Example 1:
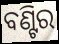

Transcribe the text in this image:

ବଣ୍ଟିର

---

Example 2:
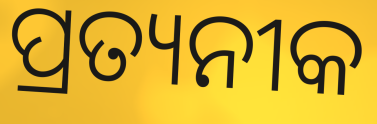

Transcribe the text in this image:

ପ୍ରତ୍ୟନୀକ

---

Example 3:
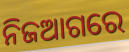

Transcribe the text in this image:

ନିଜଆଗରେ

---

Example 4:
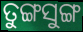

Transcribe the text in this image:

ତୁଙ୍ଗସୁଙ୍ଗ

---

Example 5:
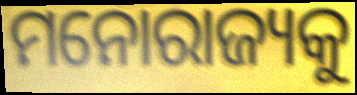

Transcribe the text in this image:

ମନୋରାଜ୍ୟକୁ